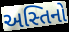
અસ્તિનો